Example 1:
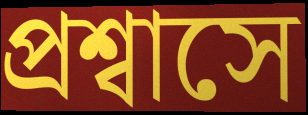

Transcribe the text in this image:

প্রশ্বাসে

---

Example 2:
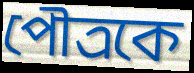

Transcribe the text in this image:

পৌত্রকে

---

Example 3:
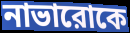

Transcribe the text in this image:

নাভারোকে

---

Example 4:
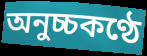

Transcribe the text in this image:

অনুচ্চকণ্ঠে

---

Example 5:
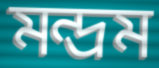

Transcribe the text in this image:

মন্দ্রম